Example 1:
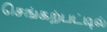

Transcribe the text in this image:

செங்கற்பட்டில்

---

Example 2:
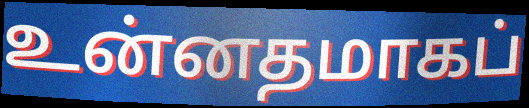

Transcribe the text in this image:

உன்னதமாகப்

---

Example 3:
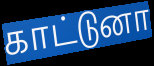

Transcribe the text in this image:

காட்டுனா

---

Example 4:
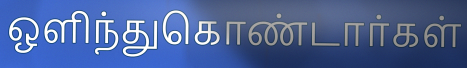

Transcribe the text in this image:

ஒளிந்துகொண்டார்கள்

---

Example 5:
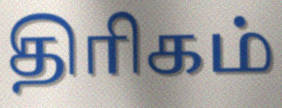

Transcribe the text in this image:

திரிகம்